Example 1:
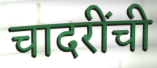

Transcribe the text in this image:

चादरींची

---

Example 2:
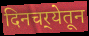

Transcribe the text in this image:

दिनचर्येतून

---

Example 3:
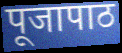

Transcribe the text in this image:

पूजापाठ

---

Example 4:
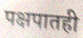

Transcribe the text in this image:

पक्षपातही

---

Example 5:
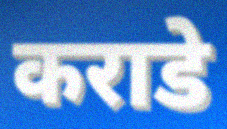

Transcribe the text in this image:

कराडे